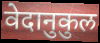
वेदानुकुल